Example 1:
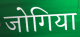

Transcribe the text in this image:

जोगिया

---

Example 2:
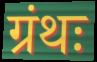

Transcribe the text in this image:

ग्रंथः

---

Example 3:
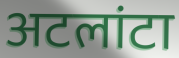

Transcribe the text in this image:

अटलांटा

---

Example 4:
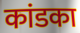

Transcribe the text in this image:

कांडका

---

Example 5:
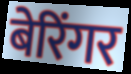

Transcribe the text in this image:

बेरिंगर